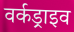
वर्कड्राइव